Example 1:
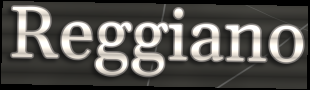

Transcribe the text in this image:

Reggiano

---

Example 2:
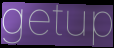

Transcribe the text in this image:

getup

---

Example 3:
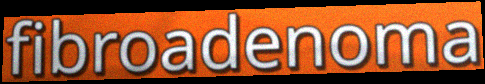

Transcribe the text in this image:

fibroadenoma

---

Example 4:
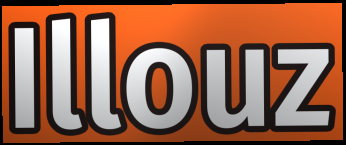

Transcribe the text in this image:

Illouz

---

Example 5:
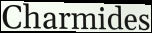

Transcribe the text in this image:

Charmides